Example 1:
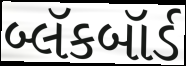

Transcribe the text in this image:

બ્લૅકબૉર્ડ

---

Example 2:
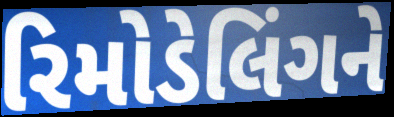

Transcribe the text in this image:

રિમોડેલિંગને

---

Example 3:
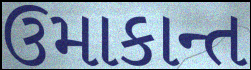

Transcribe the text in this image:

ઉમાકાન્ત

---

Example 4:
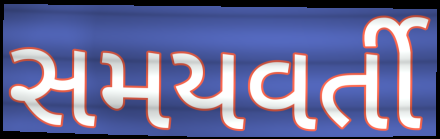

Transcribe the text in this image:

સમયવર્તી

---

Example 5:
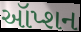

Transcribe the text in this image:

ઑપ્શન